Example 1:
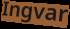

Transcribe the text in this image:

Ingvar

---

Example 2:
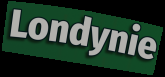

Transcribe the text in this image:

Londynie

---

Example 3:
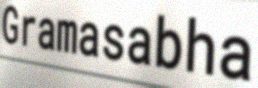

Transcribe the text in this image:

Gramasabha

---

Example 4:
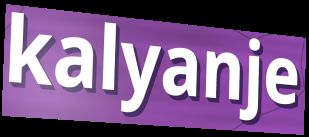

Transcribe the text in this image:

kalyanje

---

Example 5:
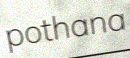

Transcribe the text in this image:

pothana